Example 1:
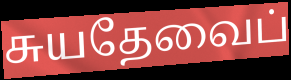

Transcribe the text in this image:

சுயதேவைப்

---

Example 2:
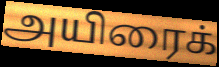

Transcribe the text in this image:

அயிரைக்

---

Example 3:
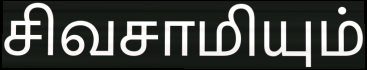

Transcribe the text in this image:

சிவசாமியும்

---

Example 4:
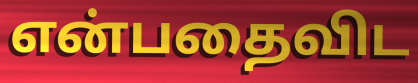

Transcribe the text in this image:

என்பதைவிட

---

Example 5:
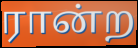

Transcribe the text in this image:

ரான்ற